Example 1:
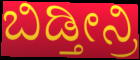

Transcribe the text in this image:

ಬಿಡ್ತೀನ್ರಿ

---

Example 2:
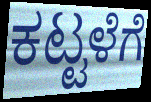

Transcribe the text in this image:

ಕಟ್ಟಳೆಗೆ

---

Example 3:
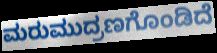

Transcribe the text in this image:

ಮರುಮುದ್ರಣಗೊಂಡಿದೆ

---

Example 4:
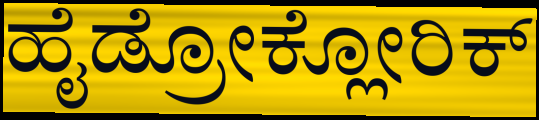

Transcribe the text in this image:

ಹೈಡ್ರೋಕ್ಲೋರಿಕ್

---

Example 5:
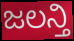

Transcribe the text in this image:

ಜಲನ್ತಿ